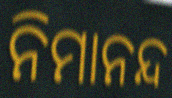
ନିମାନନ୍ଦ